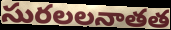
సురలలనాతత